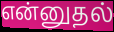
என்னுதல்